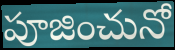
పూజించునో